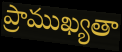
ప్రాముఖ్యతా